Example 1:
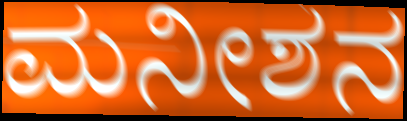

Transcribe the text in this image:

ಮನೀಶನ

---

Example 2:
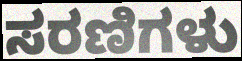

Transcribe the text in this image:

ಸರಣಿಗಳು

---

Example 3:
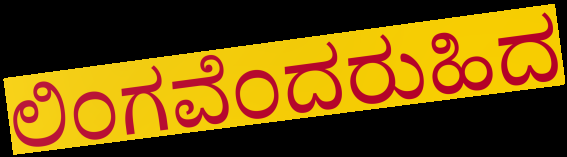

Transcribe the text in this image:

ಲಿಂಗವೆಂದರುಹಿದ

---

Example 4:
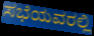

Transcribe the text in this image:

ಸಭೆಯವರಲ್ಲಿ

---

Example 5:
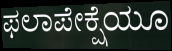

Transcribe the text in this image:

ಫಲಾಪೇಕ್ಷೆಯೂ